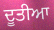
ਦੂਤੀਆ